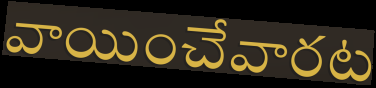
వాయించేవారట